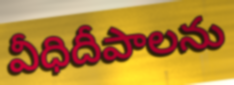
వీధిదీపాలను